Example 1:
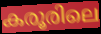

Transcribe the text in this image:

കരൂരിലെ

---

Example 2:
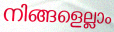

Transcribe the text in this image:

നിങ്ങളെല്ലാം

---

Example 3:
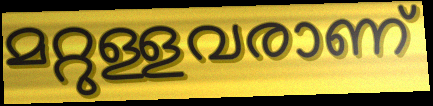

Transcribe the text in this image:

മറ്റുള്ളവരാണ്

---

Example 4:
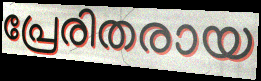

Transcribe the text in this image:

പ്രേരിതരായ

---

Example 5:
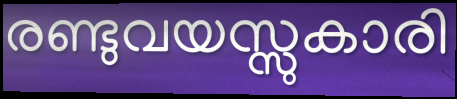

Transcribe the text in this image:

രണ്ടുവയസ്സുകാരി